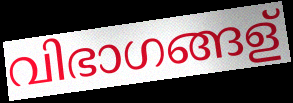
വിഭാഗങ്ങള്